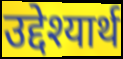
उद्देश्यार्थ